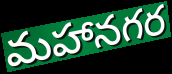
మహానగర